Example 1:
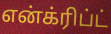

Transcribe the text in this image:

என்க்ரிப்ட்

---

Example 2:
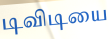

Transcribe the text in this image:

டிவிடியை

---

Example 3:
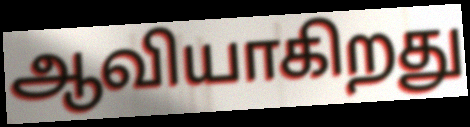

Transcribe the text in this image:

ஆவியாகிறது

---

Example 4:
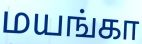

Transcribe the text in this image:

மயங்கா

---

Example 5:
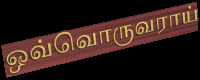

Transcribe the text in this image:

ஒவ்வொருவராய்